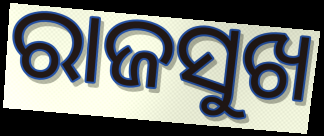
ରାଜସୁଖ